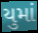
યુમાં